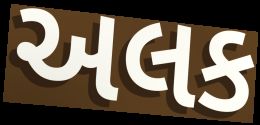
અલક